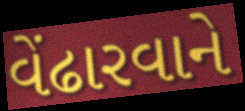
વેંઢારવાને